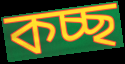
কচ্ছ